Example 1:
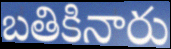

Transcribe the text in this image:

బతికినారు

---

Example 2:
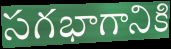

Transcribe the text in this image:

సగభాగానికి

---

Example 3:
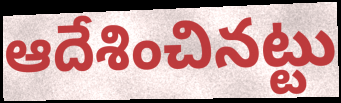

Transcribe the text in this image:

ఆదేశించినట్టు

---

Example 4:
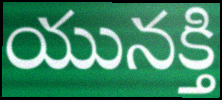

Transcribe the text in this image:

యునక్తి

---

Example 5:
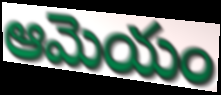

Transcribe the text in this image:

ఆమెయం